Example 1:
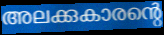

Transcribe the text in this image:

അലക്കുകാരന്റെ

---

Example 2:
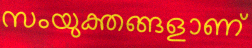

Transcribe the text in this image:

സംയുക്തങ്ങളാണ്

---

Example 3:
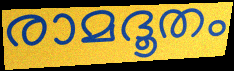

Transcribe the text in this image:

രാമദൂതം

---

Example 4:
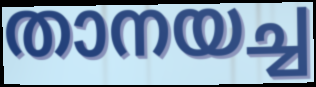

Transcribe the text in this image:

താനയച്ച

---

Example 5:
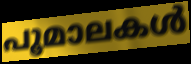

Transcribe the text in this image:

പൂമാലകൾ